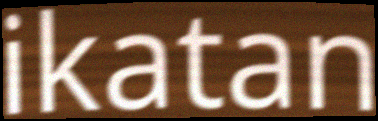
ikatan